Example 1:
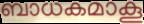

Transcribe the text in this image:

ബാധകമാകൂ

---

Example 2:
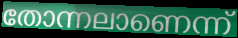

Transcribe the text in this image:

തോന്നലാണെന്ന്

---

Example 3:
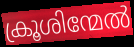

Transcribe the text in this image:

ക്രൂശിന്മേൽ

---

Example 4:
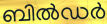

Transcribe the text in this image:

ബിൽഡർ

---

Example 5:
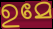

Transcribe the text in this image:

ഉമേ